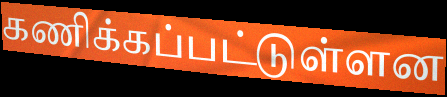
கணிக்கப்பட்டுள்ளன